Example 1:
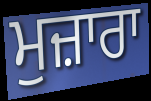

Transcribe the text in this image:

ਮੁਜ਼ਾਰਾ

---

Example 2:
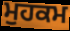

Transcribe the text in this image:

ਮੁਹਕਮ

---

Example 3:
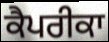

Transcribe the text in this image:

ਕੈਪਰੀਕਾ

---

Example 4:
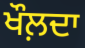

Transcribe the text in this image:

ਖੌਲ਼ਦਾ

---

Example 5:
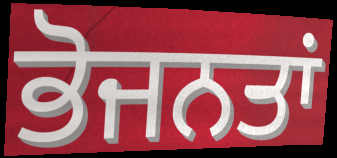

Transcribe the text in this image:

ਭੋਜਨਤਾਂ